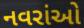
નવરાંઓ